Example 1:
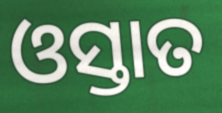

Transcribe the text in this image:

ଓସ୍ତାତ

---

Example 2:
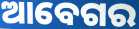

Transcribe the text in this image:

ଆବେଗର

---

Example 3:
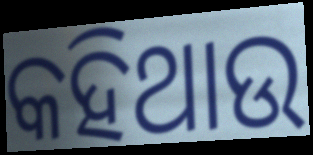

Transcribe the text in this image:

କହିଥାଉ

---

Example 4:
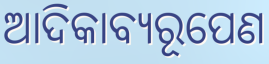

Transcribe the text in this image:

ଆଦିକାବ୍ୟରୂପେଣ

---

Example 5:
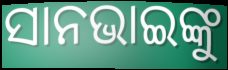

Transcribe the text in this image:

ସାନଭାଇଙ୍କୁ